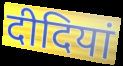
दीदियां